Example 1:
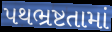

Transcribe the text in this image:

પથભ્રષ્ટતામાં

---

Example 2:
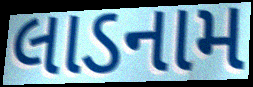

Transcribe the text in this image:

લાડનામ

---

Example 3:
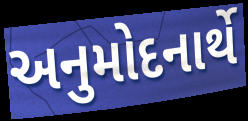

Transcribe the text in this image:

અનુમોદનાર્થે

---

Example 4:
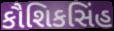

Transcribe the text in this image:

કૌશિકસિંહ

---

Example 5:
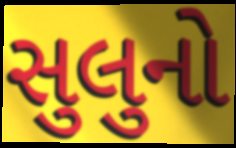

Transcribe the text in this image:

સુલુનો